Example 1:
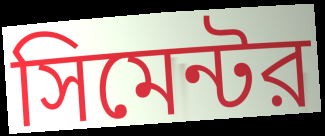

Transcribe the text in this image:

সিমেন্টর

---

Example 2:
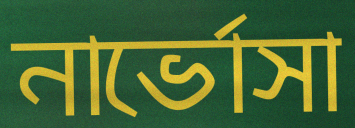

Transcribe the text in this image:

নার্ভোসা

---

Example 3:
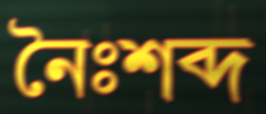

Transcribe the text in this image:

নৈঃশব্দ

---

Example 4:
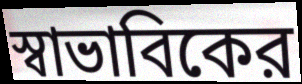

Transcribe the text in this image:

স্বাভাবিকের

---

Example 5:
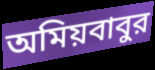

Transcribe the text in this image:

অমিয়বাবুর